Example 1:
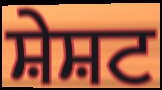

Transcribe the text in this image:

ਸ਼ੇਸ਼ਟ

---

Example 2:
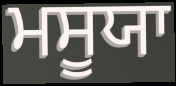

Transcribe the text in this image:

ਮਸੂਯਾ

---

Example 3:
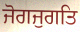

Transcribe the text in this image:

ਜੋਗਜੁਗਤਿ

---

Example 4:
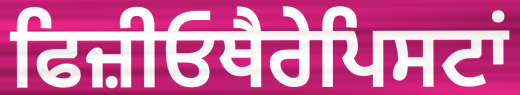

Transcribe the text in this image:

ਫਿਜ਼ੀਓਥੈਰੇਪਿਸਟਾਂ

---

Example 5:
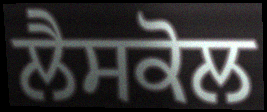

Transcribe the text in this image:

ਲੈਸਕੋਲ